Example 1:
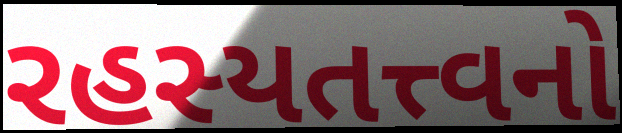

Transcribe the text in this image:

રહસ્યતત્ત્વનો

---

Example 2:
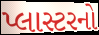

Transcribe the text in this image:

પ્લાસ્ટરનો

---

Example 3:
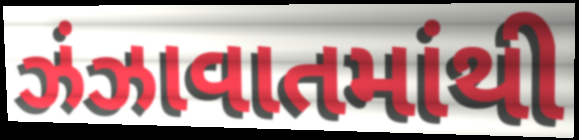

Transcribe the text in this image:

ઝંઝાવાતમાંથી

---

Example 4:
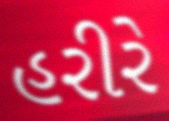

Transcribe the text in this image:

હરીરે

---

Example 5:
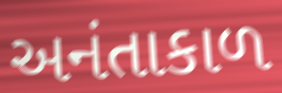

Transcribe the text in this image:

અનંતાકાળ